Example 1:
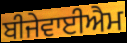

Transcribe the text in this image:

ਬੀਜੇਵਾਈਐਮ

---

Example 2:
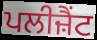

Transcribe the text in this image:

ਪਲੀਜ਼ੈਂਟ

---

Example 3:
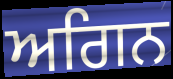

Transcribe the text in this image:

ਅਗਿਨ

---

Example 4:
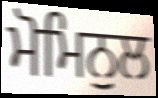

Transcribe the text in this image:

ਮੋਮਿਨੁਲ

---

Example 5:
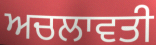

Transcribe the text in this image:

ਅਚਲਾਵਤੀ